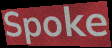
Spoke